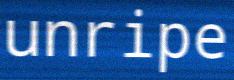
unripe